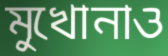
মুখোনাও